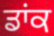
ਡਾਂਕ